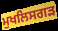
ਮੁਖਲਿਸਗੜ